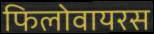
फिलोवायरस